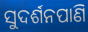
ସୁଦର୍ଶନପାଣି